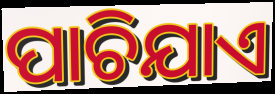
ପାଚିଯାଏ